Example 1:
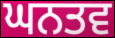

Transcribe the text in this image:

ਘਨਤਵ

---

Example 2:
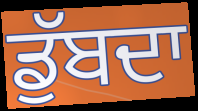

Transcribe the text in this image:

ਡੁੱਬਦਾ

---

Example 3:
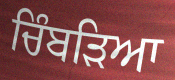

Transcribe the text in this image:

ਚਿੰਬੜਿਆ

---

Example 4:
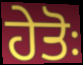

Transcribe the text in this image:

ਹੇਤੋਃ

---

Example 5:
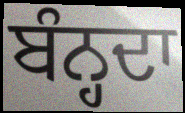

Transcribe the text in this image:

ਬੰਨ੍ਹਦਾ